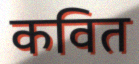
कवित